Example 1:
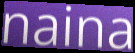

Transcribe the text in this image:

naina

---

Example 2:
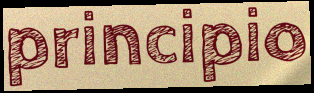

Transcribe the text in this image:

principio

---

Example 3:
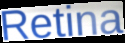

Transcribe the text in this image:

Retina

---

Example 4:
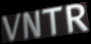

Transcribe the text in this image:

VNTR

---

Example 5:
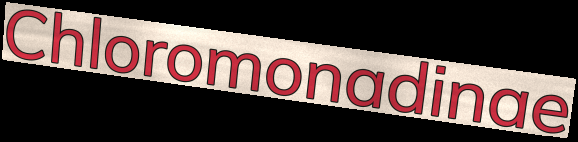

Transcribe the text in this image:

Chloromonadinae